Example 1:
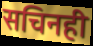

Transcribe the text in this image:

सचिनही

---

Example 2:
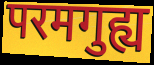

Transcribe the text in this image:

परमगुह्य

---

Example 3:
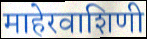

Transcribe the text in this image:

माहेरवाशिणी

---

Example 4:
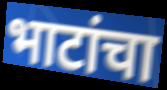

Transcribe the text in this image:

भाटांचा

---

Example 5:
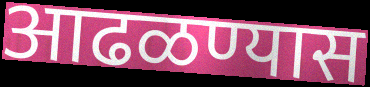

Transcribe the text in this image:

आढळण्यास